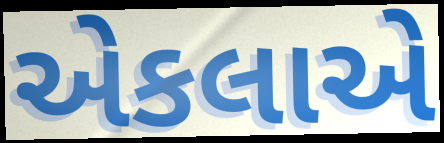
એકલાએ